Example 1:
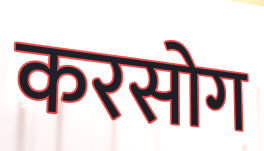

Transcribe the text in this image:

करसोग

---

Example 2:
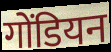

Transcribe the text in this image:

गोंडियन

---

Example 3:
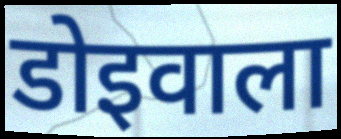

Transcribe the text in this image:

डोइवाला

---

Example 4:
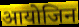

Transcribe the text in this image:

आयोजिन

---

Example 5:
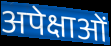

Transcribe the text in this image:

अपेक्षाओं